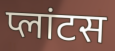
प्लांटस